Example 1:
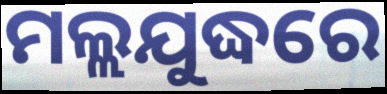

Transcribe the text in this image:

ମଲ୍ଲଯୁଦ୍ଧରେ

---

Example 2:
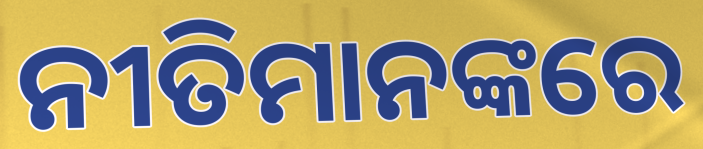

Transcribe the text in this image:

ନୀତିମାନଙ୍କରେ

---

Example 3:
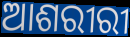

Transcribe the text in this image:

ଆଶରୀରୀ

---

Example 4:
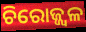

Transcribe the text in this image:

ଚିରୋଜ୍ଜ୍ଵଳ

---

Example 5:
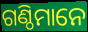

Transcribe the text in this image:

ଗଣ୍ଠିମାନେ